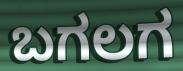
ಬಗಲಗ